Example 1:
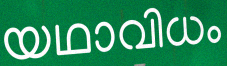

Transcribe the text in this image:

യഥാവിധം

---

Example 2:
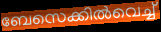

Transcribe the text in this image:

ബേസെക്കിൽവെച്ച്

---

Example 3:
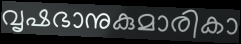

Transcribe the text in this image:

വൃഷഭാനുകുമാരികാ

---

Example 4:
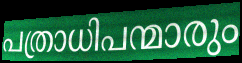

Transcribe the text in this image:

പത്രാധിപന്മാരും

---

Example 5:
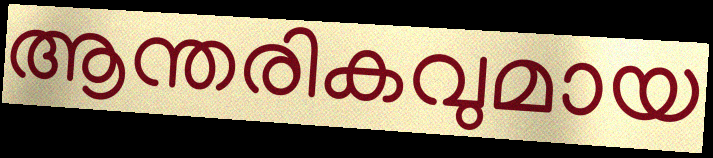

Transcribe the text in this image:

ആന്തരികവുമായ